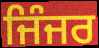
ਜਿੰਜਰ